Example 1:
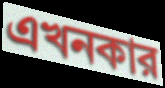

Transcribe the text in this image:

এখনকার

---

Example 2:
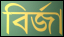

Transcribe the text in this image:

বির্জা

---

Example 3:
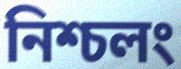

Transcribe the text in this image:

নিশ্চলং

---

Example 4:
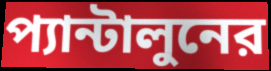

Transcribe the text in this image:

প্যান্টালুনের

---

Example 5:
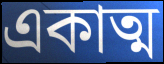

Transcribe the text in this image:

একাত্ম